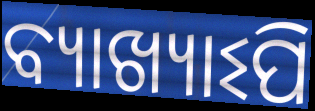
ବ୍ୟାଖ୍ୟାଽପି